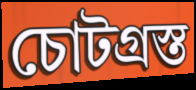
চোটগ্রস্ত